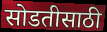
सोडतीसाठी